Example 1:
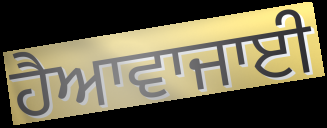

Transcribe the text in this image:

ਹੈਆਵਾਜਾਈ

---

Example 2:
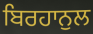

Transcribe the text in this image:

ਬਿਰਹਾਨੁਲ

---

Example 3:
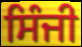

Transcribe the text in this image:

ਸਿੰਜੀ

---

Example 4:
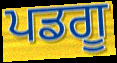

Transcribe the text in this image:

ਪਡਗੂ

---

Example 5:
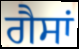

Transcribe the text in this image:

ਗੈਸਾਂ